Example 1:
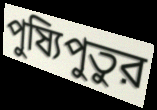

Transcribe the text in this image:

পুষ্যিপুতুর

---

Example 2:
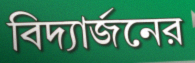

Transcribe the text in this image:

বিদ্যার্জনের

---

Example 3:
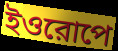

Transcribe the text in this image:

ইওরোপে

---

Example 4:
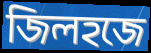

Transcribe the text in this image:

জিলহজে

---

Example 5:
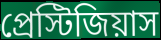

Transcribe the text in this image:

প্রেস্টিজিয়াস